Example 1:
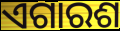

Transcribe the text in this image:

ଏଗାରଶ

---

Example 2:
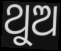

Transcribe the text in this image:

ଥୁଅ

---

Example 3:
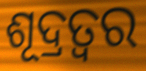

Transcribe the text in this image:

ଶୂଦ୍ରତ୍ଵର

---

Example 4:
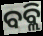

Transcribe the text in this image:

ବବ୍ଲି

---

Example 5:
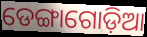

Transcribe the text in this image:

ଡେଙ୍ଗାଗୋଡ଼ିଆ